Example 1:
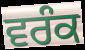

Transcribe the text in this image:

ਵਰੰਕ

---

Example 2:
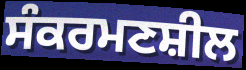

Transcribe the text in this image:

ਸੰਕਰਮਣਸ਼ੀਲ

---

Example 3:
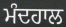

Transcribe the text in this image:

ਮੰਦਹਾਲ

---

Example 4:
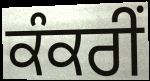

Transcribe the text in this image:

ਕੰਕਰੀਂ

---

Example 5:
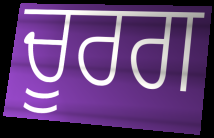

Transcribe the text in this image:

ਚੂਰਗ